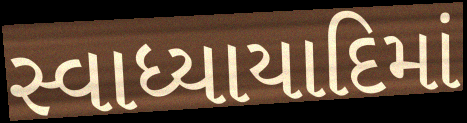
સ્વાધ્યાયાદિમાં